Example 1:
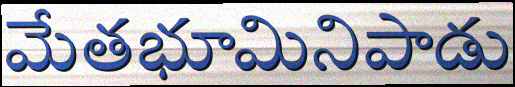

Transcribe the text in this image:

మేతభూమినిపాడు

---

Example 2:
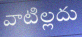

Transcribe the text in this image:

వాటిల్లదు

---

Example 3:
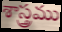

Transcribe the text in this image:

శాస్త్రము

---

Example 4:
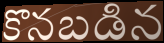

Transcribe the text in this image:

కొనబడిన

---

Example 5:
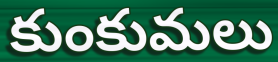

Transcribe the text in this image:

కుంకుమలు